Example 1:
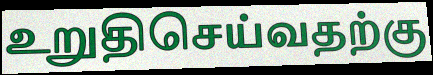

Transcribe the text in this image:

உறுதிசெய்வதற்கு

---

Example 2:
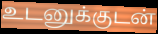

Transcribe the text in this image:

உடனுக்குடன்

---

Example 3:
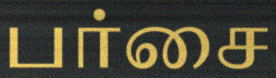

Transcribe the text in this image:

பர்சை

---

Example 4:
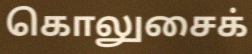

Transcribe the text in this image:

கொலுசைக்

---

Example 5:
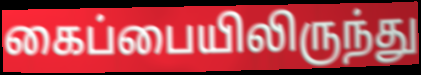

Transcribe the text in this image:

கைப்பையிலிருந்து